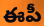
ఈపీ